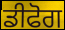
ਡੀਫੋਗ